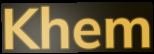
Khem